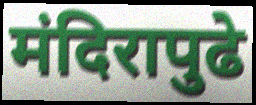
मंदिरापुढे